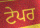
ਟੇਪਰ